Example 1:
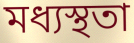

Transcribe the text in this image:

মধ্যস্থতা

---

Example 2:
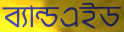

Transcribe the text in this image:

ব্যান্ডএইড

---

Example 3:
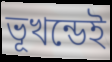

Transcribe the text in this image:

ভূখন্ডেই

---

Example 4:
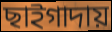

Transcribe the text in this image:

ছাইগাদায়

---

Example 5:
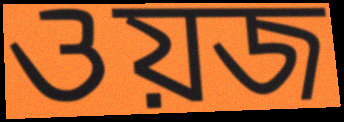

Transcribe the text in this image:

ওয়জ